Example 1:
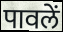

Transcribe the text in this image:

पावलें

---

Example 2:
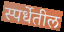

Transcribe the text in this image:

स्पर्धेतील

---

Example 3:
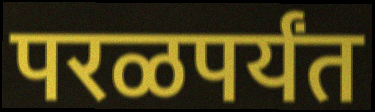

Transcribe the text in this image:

परळपर्यंत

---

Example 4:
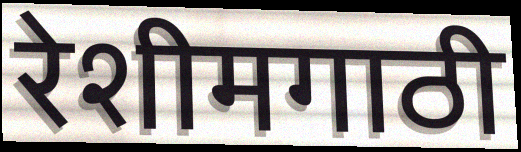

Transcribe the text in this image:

रेशीमगाठी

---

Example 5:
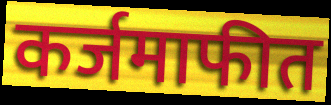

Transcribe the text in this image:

कर्जमाफीत